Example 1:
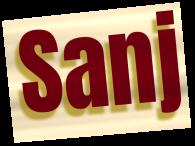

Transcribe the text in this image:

Sanj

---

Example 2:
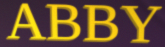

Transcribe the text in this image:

ABBY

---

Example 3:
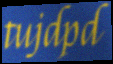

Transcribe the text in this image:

tujdpd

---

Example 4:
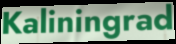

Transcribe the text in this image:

Kaliningrad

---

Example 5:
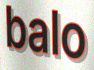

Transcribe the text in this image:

balo